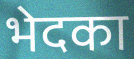
भेदका